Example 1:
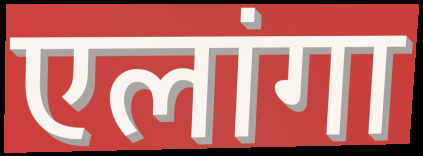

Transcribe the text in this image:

एलांगा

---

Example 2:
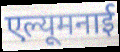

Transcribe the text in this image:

एल्यूमनाई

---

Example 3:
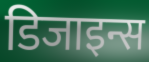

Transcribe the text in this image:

डिजाइन्स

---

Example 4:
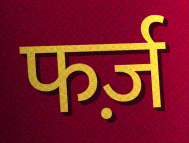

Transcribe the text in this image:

फर्ज़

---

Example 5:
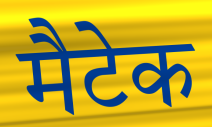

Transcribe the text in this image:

मैटेक